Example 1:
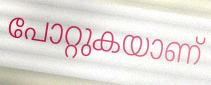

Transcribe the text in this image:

പോറ്റുകയാണ്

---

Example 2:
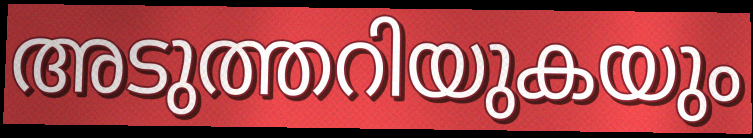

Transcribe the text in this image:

അടുത്തറിയുകയും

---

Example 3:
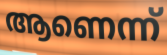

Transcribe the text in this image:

ആണെന്ന്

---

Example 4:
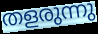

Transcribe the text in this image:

തളരുന്നു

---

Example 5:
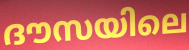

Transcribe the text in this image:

ദൗസയിലെ